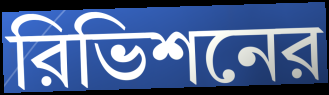
রিভিশনের